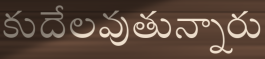
కుదేలవుతున్నారు